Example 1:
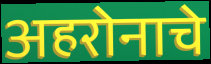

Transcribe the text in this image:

अहरोनाचे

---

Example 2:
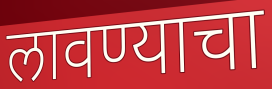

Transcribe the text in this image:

लावण्याचा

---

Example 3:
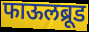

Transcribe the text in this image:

फाऊलब्रूड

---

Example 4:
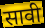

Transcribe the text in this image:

सावी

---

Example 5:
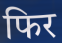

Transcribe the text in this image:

फिर